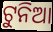
ଟୁନିଆ